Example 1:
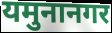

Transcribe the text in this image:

यमुनानगर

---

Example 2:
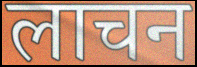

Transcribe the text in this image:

लाचन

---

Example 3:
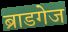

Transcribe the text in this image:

ब्राडगेज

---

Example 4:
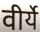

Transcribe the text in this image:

वीर्ये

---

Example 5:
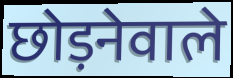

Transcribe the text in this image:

छोड़नेवाले